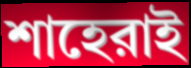
শাহেরাই